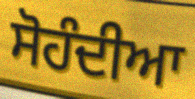
ਸੋਹੰਦੀਆ